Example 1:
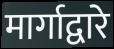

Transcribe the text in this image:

मार्गाद्वारे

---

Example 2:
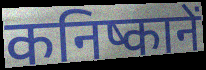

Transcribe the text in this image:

कनिष्कानें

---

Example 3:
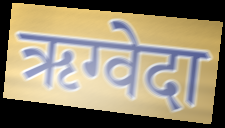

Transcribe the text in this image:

ऋग्वेदा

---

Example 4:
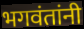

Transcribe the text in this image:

भगवंतांनी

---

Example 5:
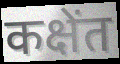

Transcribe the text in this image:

कक्षेंत